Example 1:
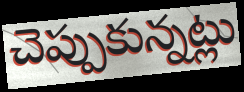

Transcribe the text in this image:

చెప్పుకున్నట్లు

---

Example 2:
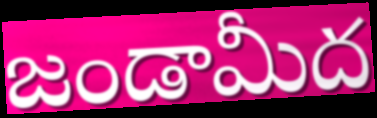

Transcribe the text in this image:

జండామీద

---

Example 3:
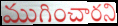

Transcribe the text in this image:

ముగించారని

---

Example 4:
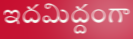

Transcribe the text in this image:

ఇదమిద్దంగా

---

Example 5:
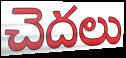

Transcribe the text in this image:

చెదలు